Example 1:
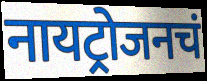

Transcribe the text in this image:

नायट्रोजनचं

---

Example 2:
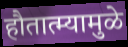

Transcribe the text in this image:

हौतात्म्यामुळे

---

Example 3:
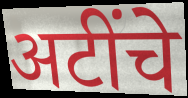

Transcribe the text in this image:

अटींचे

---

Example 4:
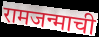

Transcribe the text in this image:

रामजन्माची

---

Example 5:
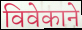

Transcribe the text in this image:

विवेकाने